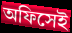
অফিসেই